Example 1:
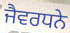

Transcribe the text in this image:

ਜੈਵਰਧਨੇ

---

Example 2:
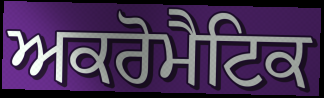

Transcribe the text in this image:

ਅਕਰੋਮੈਟਿਕ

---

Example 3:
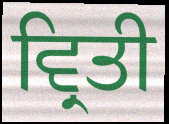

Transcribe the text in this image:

ਵ੍ਰਿਤੀ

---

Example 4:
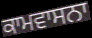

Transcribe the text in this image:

ਕਾਮਵਾਸਨਾ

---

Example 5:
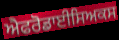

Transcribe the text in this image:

ਐਫਰੋਡਾਈਸਿਅਕਸ